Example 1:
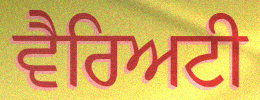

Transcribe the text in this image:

ਵੈਰਿਅਟੀ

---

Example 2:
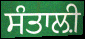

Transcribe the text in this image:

ਸੰਤਾਲ਼ੀ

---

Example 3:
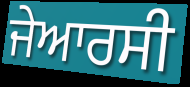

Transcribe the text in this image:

ਜੇਆਰਸੀ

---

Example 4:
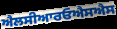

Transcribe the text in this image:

ਐਲਸੀਆਰਓਐਸਐਸ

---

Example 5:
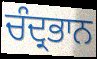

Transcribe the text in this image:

ਚੰਦ੍ਰਭਾਨ